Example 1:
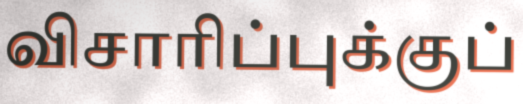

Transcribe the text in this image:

விசாரிப்புக்குப்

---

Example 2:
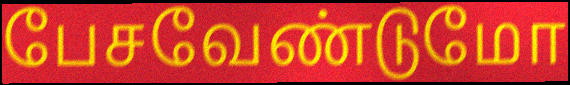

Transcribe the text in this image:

பேசவேண்டுமோ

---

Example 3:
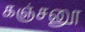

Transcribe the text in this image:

கஞ்சனூ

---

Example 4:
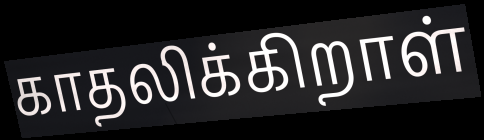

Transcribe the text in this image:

காதலிக்கிறாள்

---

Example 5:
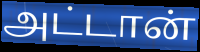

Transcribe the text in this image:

அட்டான்